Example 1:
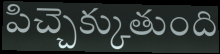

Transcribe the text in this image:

పిచ్చెక్కుతుంది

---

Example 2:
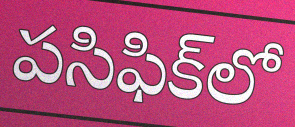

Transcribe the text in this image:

పసిఫిక్‌లో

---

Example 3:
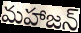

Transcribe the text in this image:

మహాజన్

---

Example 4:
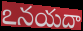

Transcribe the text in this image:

ఽనయదా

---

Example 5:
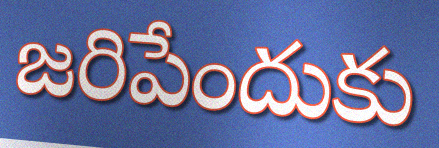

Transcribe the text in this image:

జరిపేందుకు